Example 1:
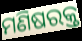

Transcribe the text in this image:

ମଣିଷରକ୍ତ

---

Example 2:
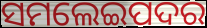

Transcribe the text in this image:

ସମଲେଇପଦର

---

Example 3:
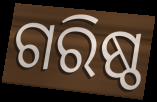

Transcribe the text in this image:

ଗରିଷ୍ଠ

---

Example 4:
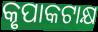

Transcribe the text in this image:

କୃପାକଟାକ୍ଷ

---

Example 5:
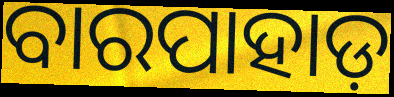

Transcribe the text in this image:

ବାରପାହାଡ଼